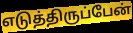
எடுத்திருப்பேன்